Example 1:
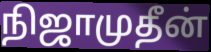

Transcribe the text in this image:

நிஜாமுதீன்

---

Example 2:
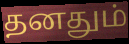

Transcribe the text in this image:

தனதும்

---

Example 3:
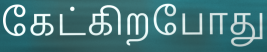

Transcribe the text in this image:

கேட்கிறபோது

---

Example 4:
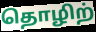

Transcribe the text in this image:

தொழிற்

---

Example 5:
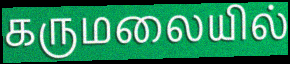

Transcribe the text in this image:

கருமலையில்